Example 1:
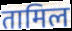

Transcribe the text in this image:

तामिल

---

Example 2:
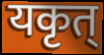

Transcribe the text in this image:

यकृत्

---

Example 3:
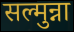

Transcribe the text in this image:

सल्मुन्ना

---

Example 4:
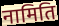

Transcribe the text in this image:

नामिति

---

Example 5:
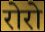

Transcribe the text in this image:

रोरो